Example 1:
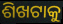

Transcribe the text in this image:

ଶିଖଟାକୁ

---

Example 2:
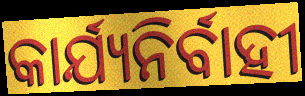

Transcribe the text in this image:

କାର୍ଯ୍ୟନିର୍ବାହୀ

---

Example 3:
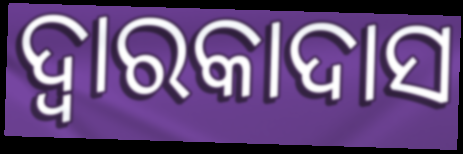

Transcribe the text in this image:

ଦ୍ୱାରକାଦାସ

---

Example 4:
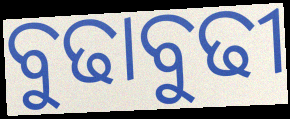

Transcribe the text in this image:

ବୁଢାବୁଢୀ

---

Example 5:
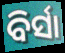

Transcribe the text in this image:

ବିର୍ସା